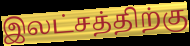
இலட்சத்திற்கு